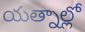
యత్నాల్లో